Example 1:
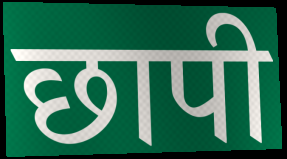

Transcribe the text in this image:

छापी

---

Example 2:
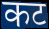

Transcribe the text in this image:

कट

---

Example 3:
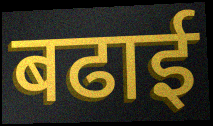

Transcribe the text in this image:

बढाई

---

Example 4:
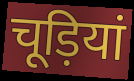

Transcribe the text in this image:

चूड़ियां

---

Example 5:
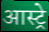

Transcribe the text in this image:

आस्ट्रे